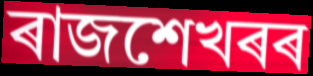
ৰাজশেখৰৰ